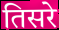
तिसरे